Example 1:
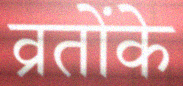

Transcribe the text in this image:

व्रतोंके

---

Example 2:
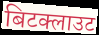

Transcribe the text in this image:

बिटक्लाउट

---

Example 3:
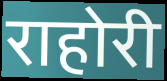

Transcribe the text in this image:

राहोरी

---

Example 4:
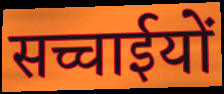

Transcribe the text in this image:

सच्चाईयों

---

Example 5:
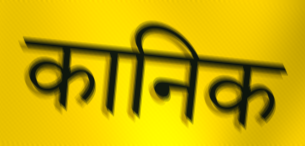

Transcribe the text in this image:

कानिक